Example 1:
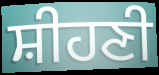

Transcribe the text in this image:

ਸ਼ੀਹਣੀ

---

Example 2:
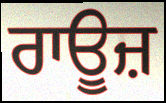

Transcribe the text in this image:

ਰਾਊਜ਼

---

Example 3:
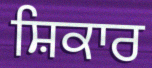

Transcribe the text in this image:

ਸ਼ਿਕਾਰ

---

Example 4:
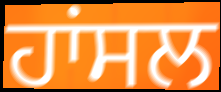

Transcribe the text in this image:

ਹਾਂਸਲ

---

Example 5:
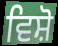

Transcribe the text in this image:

ਵਿਸ਼ੋ